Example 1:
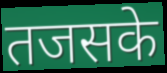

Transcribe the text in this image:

तजसके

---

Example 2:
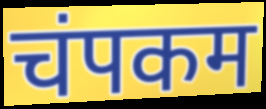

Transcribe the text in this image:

चंपकम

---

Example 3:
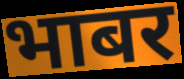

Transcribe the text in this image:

भाबर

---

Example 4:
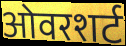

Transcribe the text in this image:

ओवरशर्ट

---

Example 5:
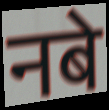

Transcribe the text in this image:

नबे